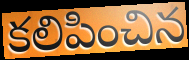
కలిపించిన